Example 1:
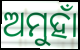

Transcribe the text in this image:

ଅମୁହାଁ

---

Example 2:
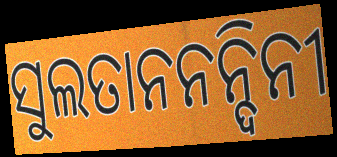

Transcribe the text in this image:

ସୁଲତାନନନ୍ଦିନୀ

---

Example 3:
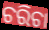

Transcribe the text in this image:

ଚରିଚା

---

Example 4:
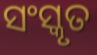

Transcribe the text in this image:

ସଂସ୍କୃତ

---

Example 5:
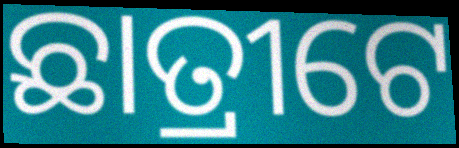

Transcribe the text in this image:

ଛାତ୍ରୀଟେ